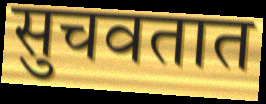
सुचवतात